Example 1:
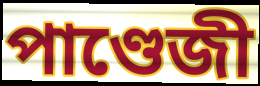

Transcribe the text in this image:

পাণ্ডেজী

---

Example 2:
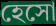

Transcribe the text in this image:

হেসো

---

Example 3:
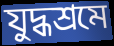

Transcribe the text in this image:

যুদ্ধশ্রমে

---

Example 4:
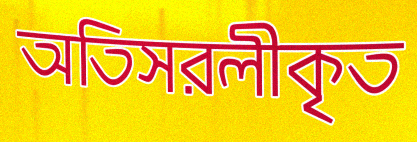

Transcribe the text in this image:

অতিসরলীকৃত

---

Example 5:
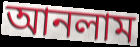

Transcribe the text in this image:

আনলাম